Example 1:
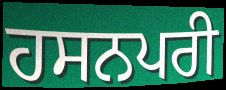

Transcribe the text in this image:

ਹਸਨਪਰੀ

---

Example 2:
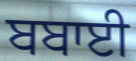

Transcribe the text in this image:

ਬਬਾਈ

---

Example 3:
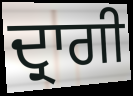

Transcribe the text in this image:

ਦ੍ਰਾਗੀ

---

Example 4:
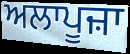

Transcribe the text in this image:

ਅਲਾਪੂਜ਼ਾ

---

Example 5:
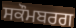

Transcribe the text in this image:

ਸਕੌਮਬਰਗ